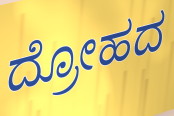
ದ್ರೋಹದ